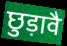
छुड़ावै